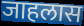
जाहलास